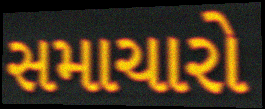
સમાચારો